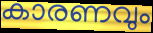
കാരണവും